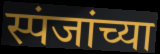
स्पंजांच्या